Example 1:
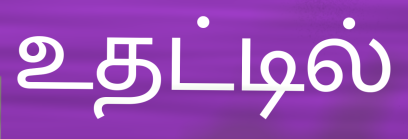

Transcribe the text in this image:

உதட்டில்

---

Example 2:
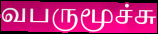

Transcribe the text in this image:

வபருமூச்சு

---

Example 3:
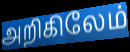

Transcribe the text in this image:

அறிகிலேம்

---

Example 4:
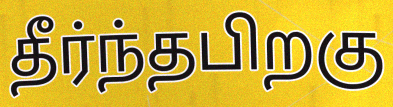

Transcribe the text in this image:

தீர்ந்தபிறகு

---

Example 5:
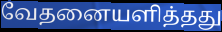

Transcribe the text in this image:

வேதனையளித்தது